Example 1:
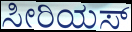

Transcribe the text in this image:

ಸೀರಿಯಸ್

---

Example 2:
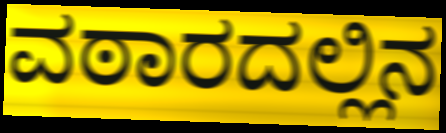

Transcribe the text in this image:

ವಠಾರದಲ್ಲಿನ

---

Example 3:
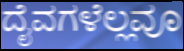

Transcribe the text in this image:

ದೈವಗಳೆಲ್ಲವೂ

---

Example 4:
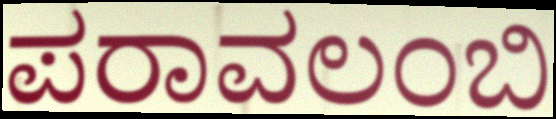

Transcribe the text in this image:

ಪರಾವಲಂಬಿ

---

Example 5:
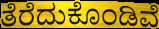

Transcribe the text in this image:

ತೆರೆದುಕೊಂಡಿವೆ